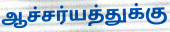
ஆச்சர்யத்துக்கு